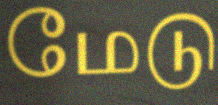
மேடு